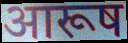
आरूष